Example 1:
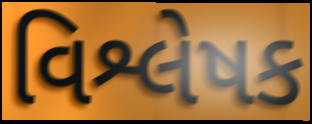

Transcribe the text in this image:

વિશ્લેષક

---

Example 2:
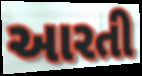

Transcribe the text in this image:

આરતી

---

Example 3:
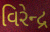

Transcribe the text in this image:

વિરેન્દ્ર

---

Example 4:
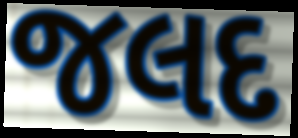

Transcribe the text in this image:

જલદ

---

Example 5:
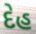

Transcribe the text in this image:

દેહ